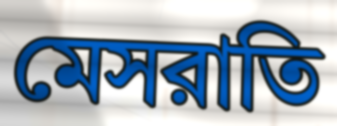
মেসরাতি